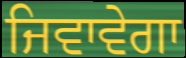
ਜਿਵਾਵੇਗਾ